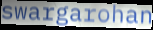
swargarohan